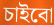
চাইবো